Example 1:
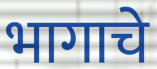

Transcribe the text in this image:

भागाचे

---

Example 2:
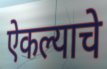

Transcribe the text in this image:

ऐकल्याचे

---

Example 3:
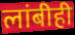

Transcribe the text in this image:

लांबीही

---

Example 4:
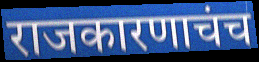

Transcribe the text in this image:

राजकारणाचंच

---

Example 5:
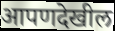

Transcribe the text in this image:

आपणदेखील